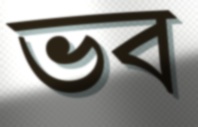
ভব